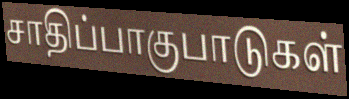
சாதிப்பாகுபாடுகள்